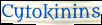
Cytokinins